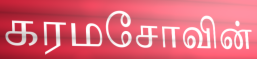
கரமசோவின்